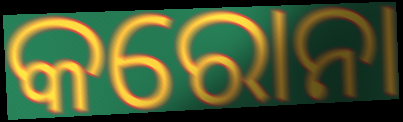
କରୋନା